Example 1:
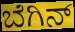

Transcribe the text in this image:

ಬೆಗಿನ್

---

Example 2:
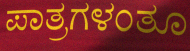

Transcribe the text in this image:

ಪಾತ್ರಗಳಂತೂ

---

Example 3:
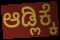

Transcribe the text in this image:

ಆಡ್ಲಿಕ್ಕೆ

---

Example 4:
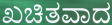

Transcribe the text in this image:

ಖಚಿತವಾದ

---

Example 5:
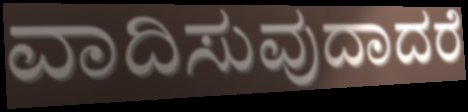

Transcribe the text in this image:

ವಾದಿಸುವುದಾದರೆ